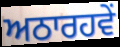
ਅਠਾਰਹਵੇਂ